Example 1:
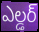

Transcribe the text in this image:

ఎల్డర్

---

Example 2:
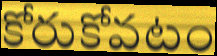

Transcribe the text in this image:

కోరుకోవటం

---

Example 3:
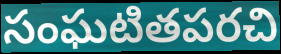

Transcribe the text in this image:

సంఘటితపరచి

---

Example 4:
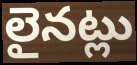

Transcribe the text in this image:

లైనట్లు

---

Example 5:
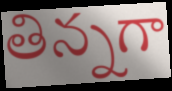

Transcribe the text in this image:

తిన్నగా